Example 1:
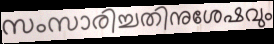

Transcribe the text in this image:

സംസാരിച്ചതിനുശേഷവും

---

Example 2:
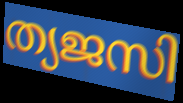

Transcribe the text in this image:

ത്യജസി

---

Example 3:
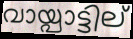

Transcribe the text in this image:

വായ്പാട്ടില്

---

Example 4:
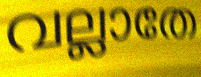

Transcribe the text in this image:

വല്ലാതേ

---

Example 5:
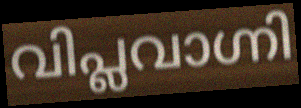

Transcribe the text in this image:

വിപ്ലവാഗ്നി